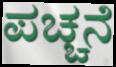
ಪಚ್ಚನೆ